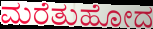
ಮರೆತುಹೋದ